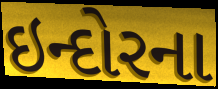
ઇન્દોરના